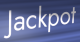
Jackpot